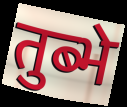
तुब्भे